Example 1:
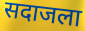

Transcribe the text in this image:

सदाजला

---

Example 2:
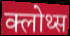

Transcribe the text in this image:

क्लोथ्स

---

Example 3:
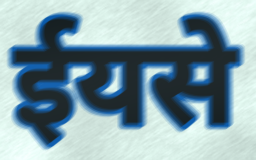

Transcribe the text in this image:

ईयसे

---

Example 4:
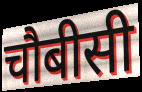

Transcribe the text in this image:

चौबीसी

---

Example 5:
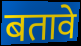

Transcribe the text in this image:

बतावे